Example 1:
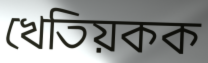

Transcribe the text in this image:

খেতিয়কক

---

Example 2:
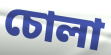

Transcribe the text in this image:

চোলা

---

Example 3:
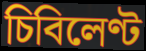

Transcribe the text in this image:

চিবিলেণ্ট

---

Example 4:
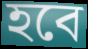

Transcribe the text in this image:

হবে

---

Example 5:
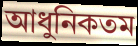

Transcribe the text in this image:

আধুনিকতম